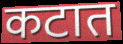
कटात